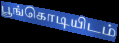
பூங்கொடியிடம்